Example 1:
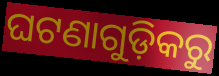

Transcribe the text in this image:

ଘଟଣାଗୁଡ଼ିକରୁ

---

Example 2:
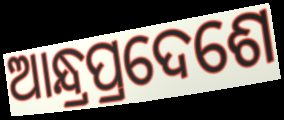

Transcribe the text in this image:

ଆନ୍ଧ୍ରପ୍ରଦେଶେ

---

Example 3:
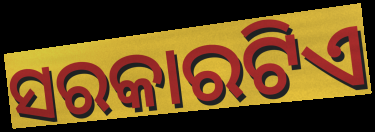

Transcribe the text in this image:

ସରକାରଟିଏ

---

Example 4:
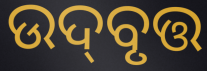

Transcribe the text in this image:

ଉଦ୍‌ବୃତ୍ତ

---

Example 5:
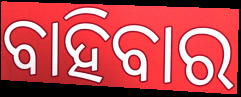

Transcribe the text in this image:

ବାହିବାର